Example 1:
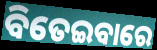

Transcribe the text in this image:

ବିତେଇବାରେ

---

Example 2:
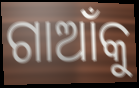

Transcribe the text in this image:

ଗାଆଁକୁ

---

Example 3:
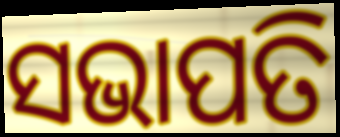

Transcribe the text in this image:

ସଭାପତି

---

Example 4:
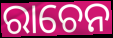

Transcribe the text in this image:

ରାଚେନ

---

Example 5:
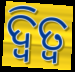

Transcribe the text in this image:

ଦ୍ୱିତ୍ୱ